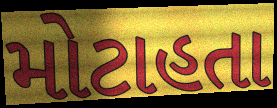
મોટાહતા